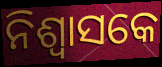
ନିଶ୍ୱାସକେ